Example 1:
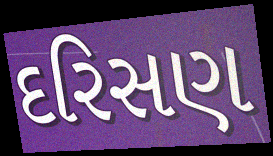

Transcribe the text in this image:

દરિસણ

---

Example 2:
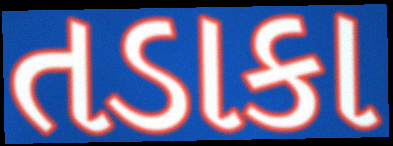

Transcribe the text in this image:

તડાકા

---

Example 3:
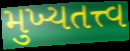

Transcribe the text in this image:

મુખ્યતત્ત્વ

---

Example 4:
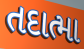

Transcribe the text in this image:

તદાત્મા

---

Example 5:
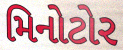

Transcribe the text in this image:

મિનોટોર